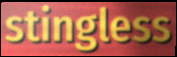
stingless